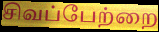
சிவப்பேற்றை